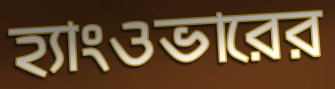
হ্যাংওভারের